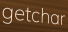
getchar